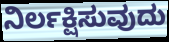
ನಿರ್ಲಕ್ಷಿಸುವುದು